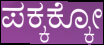
ಪಕ್ಕಕ್ಕೋ